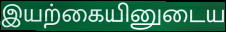
இயற்கையினுடைய